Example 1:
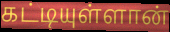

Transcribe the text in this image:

கட்டியுள்ளான்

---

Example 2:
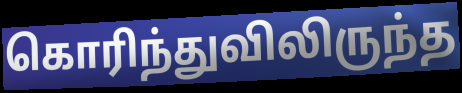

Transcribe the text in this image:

கொரிந்துவிலிருந்த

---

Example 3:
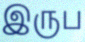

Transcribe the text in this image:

இருப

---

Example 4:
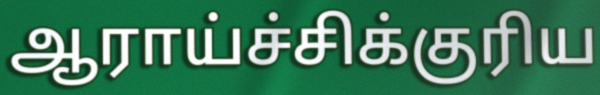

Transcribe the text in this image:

ஆராய்ச்சிக்குரிய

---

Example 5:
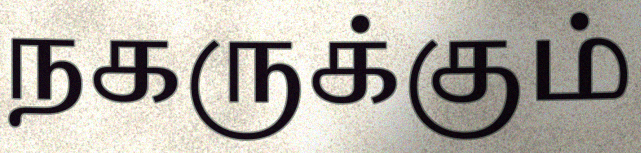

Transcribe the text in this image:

நகருக்கும்